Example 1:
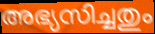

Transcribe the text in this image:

അഭ്യസിച്ചതും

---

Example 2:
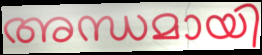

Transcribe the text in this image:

അന്ധമായി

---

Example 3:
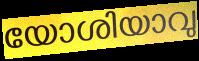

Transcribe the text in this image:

യോശിയാവു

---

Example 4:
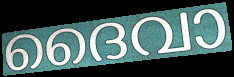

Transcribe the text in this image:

ദൈവാ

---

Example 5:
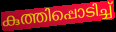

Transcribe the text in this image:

കുത്തിപ്പൊടിച്ച്